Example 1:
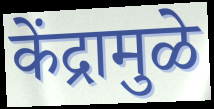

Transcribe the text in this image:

केंद्रामुळे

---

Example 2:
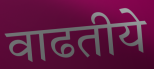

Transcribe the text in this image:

वाढतीये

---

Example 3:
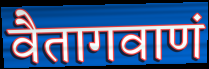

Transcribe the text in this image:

वैतागवाणं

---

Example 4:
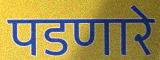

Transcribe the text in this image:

पडणारे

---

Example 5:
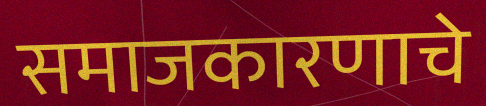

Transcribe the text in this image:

समाजकारणाचे